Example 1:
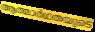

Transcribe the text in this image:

ആത്മാർഥതയുടെ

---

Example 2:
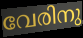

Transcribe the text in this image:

വേരിനു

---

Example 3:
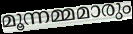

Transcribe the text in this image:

മൂന്നമ്മമാരും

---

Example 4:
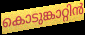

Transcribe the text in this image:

കൊടുങ്കാറ്റിൻ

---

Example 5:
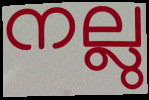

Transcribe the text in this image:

നല്ലു